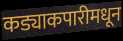
कड्याकपारीमधून